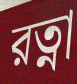
রত্না